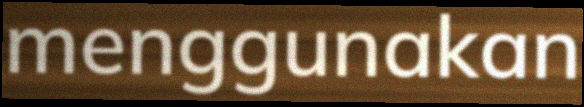
menggunakan